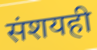
संशयही